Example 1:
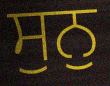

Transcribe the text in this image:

ਸੁਨੁ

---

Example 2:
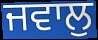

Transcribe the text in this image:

ਜਵਾਲੁ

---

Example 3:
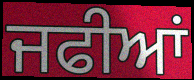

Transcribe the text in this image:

ਜਫੀਆਂ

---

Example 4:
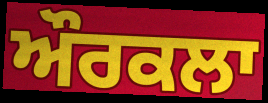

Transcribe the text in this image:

ਔਰਕਲਾ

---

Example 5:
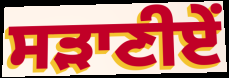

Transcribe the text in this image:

ਸੜਾਣੀਏਂ